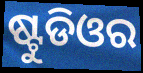
ଷ୍ଟୁଡିଓର